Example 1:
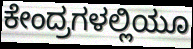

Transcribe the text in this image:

ಕೇಂದ್ರಗಳಲ್ಲಿಯೂ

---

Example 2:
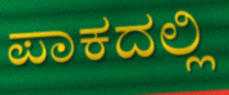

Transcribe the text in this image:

ಪಾಕದಲ್ಲಿ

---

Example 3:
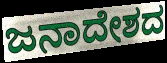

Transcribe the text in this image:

ಜನಾದೇಶದ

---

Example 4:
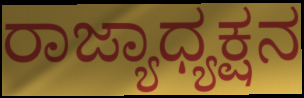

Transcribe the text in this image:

ರಾಜ್ಯಾಧ್ಯಕ್ಷನ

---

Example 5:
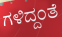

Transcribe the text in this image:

ಗಳಿದ್ದಂತೆ